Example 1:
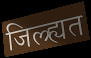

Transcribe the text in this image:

जिल्ह्यत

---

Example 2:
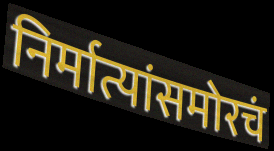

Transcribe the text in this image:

निर्मात्यांसमोरचं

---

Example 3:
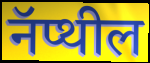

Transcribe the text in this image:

नॅप्थील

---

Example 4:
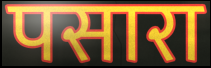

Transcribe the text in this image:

पसारा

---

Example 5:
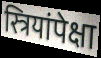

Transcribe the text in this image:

स्त्रियांपेक्षा